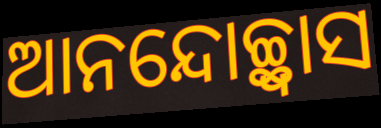
ଆନନ୍ଦୋଚ୍ଛ୍ୱାସ